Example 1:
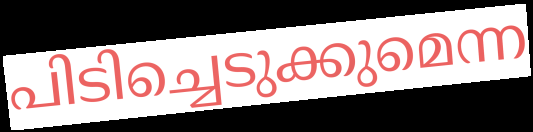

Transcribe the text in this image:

പിടിച്ചെടുക്കുമെന്ന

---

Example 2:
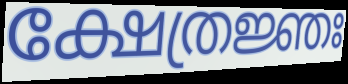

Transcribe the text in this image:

ക്ഷേത്രജ്ഞഃ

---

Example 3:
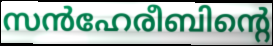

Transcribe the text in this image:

സൻഹേരീബിന്റെ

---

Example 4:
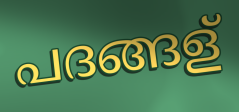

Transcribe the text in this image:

പദങ്ങള്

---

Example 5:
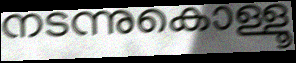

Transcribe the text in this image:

നടന്നുകൊള്ളൂ